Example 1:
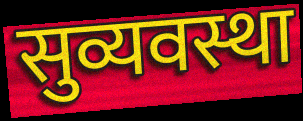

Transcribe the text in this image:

सुव्यवस्था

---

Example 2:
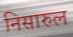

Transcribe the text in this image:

निसारुल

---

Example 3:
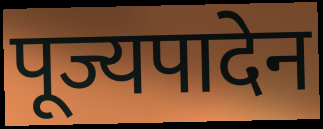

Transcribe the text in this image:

पूज्यपादेन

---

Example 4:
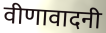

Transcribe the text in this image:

वीणावादनी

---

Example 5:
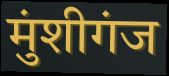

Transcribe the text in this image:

मुंशीगंज